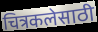
चित्रकलेसाठी